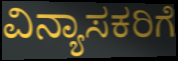
ವಿನ್ಯಾಸಕರಿಗೆ